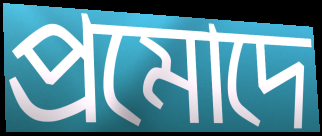
প্ৰমোদে